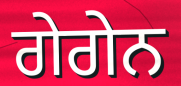
ਗੇਗੇਨ